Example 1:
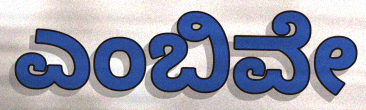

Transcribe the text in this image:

ಎಂಬಿವೇ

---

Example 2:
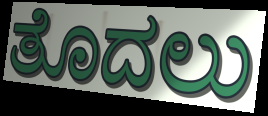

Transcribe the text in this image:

ತೊದಲು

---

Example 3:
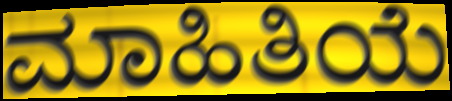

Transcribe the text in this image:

ಮಾಹಿತಿಯೆ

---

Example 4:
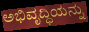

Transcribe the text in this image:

ಅಭಿವೃದ್ಧಿಯನ್ನು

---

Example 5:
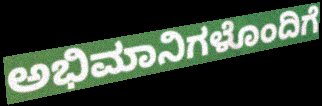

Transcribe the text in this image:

ಅಭಿಮಾನಿಗಳೊಂದಿಗೆ